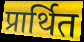
प्रार्थित